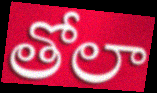
తోలా